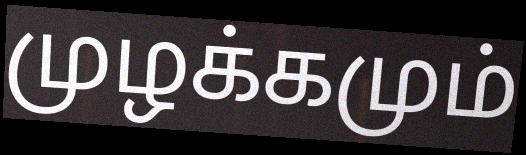
முழக்கமும்